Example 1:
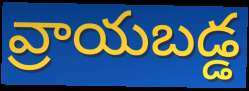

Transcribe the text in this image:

వ్రాయబడ్డ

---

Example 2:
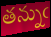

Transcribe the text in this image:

తన్నుఁ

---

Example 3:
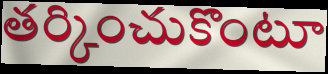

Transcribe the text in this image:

తర్కించుకొంటూ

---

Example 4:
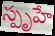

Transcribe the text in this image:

స్పృహే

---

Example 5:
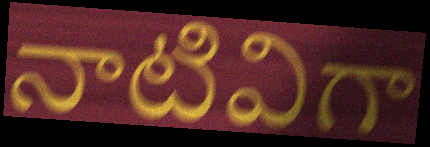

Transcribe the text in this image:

నాటివిగా